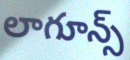
లాగూన్స్